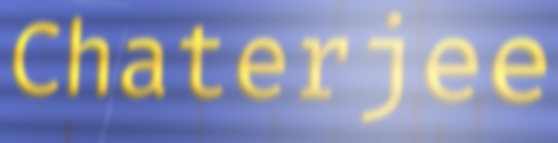
Chaterjee